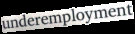
underemployment